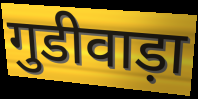
गुडीवाड़ा